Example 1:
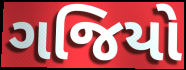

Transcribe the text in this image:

ગજિયો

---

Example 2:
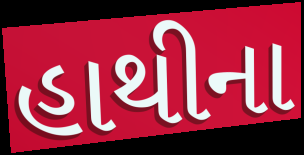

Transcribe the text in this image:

હાથીના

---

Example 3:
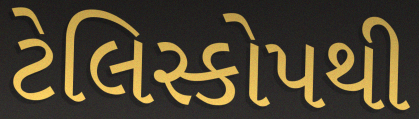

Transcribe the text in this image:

ટેલિસ્કોપથી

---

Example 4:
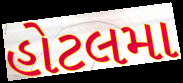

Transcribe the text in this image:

હોટલમા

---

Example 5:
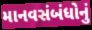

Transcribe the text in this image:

માનવસંબંધોનું